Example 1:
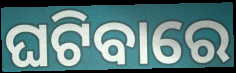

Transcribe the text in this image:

ଘଟିବାରେ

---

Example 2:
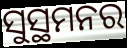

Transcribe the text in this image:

ସୁସ୍ଥମନର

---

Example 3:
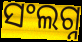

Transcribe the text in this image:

ସଂଲଗ୍ନ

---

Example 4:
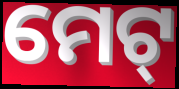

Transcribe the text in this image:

ମେଟ୍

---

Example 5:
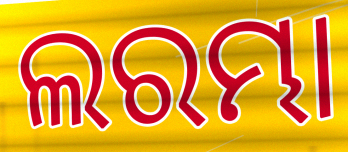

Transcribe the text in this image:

ଲରମ୍ଭା